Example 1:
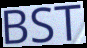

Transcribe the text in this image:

BST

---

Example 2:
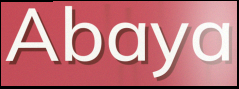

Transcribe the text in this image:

Abaya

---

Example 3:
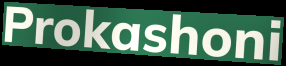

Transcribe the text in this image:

Prokashoni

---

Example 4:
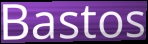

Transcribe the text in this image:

Bastos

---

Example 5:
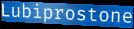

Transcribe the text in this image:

Lubiprostone